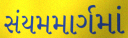
સંયમમાર્ગમાં